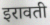
इरावती